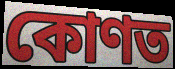
কোণত